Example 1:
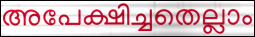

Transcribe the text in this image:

അപേക്ഷിച്ചതെല്ലാം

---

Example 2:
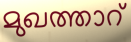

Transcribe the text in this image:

മുഖത്താറ്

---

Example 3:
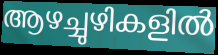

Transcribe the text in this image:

ആഴച്ചുഴികളിൽ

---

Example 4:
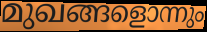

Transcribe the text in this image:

മുഖങ്ങളൊന്നും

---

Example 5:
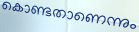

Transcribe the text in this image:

കൊണ്ടതാണെന്നും